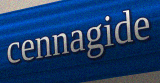
cennagide